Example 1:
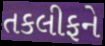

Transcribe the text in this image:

તકલીફને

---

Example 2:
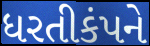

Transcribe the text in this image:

ધરતીકંપને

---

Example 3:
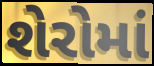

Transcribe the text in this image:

શેરોમાં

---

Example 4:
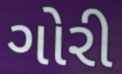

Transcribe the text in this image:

ગોરી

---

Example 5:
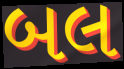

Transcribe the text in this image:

બલ